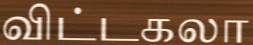
விட்டகலா